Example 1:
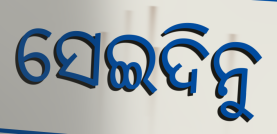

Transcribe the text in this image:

ସେଇଦିନୁ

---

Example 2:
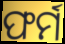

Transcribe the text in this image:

ଫର୍ମ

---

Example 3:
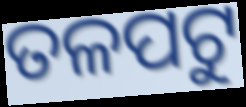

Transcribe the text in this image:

ତଳପଟୁ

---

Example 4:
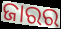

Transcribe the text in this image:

ଜାରର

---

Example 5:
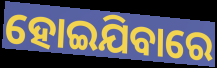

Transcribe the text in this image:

ହୋଇଯିବାରେ